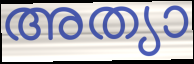
അത്യാ